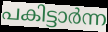
പകിട്ടാർന്ന